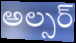
అల్సర్